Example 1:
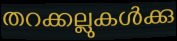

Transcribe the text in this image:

തറക്കല്ലുകൾക്കു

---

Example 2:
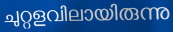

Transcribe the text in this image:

ചുറ്റളവിലായിരുന്നു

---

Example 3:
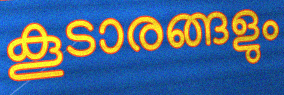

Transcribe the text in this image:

കൂടാരങ്ങളും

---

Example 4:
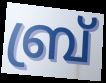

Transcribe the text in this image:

ബ്ര്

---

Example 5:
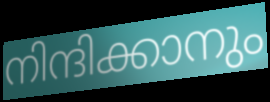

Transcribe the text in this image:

നിന്ദിക്കാനും